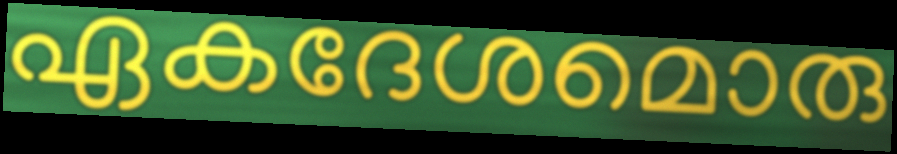
ഏകദേശമൊരു